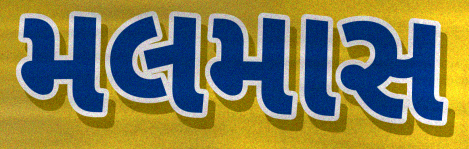
મલમાસ